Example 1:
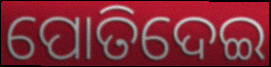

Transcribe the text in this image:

ପୋତିଦେଇ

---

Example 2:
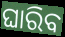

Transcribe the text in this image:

ଘାରିବ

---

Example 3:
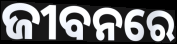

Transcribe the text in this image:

ଜୀବନରେ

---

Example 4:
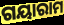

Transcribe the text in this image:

ଗୟାରାମ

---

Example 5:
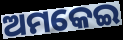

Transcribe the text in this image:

ଅମକେଇ